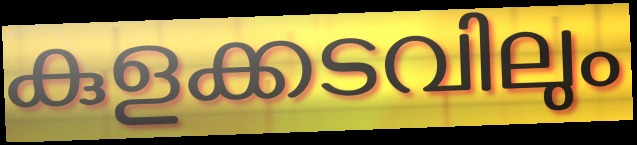
കുളക്കടവിലും